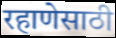
रहाणेसाठी